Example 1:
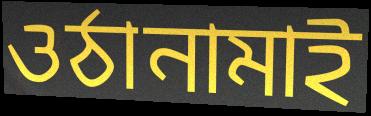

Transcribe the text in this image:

ওঠানামাই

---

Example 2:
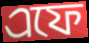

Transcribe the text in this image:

এফে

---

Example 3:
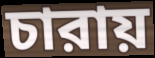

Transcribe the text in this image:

চারায়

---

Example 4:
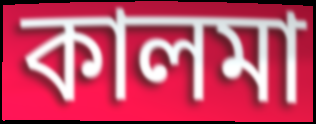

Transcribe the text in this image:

কালমা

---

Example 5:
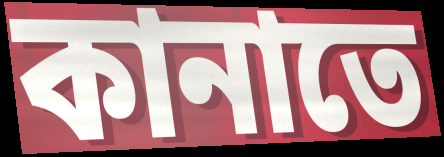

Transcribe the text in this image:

কানাতে